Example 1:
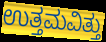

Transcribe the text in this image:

ಉತ್ತಮವಿತ್ತು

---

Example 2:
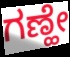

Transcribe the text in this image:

ಗಣ್ಹೇ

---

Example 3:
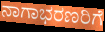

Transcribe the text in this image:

ನಾಗಾಭರಣರಿಗೆ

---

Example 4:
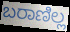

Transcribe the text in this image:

ಬರಾಣಿಲ್ಲ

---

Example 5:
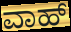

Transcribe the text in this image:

ವಾಹ್